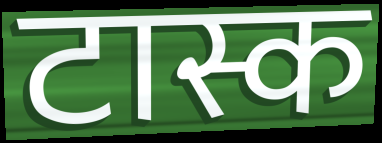
टास्क